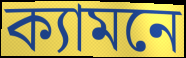
ক্যামনে